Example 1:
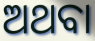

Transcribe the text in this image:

ଅଥବା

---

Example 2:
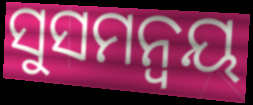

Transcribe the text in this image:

ସୁସମନ୍ଵୟ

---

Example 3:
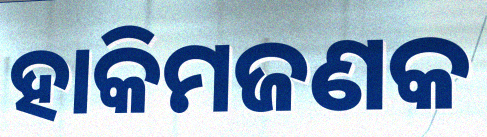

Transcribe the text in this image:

ହାକିମଜଣକ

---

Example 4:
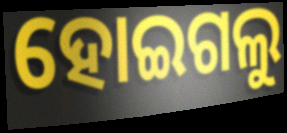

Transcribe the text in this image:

ହୋଇଗଲୁ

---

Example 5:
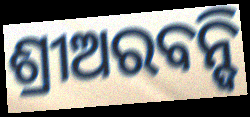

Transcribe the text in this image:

ଶ୍ରୀଅରବନ୍ଦି